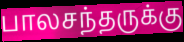
பாலசந்தருக்கு